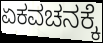
ಏಕವಚನಕ್ಕೆ